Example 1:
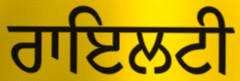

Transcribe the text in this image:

ਰਾਇਲਟੀ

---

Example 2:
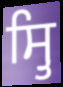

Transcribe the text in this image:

ਸ੍ਤਿ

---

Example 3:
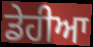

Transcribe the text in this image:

ਡੇਹੀਆ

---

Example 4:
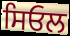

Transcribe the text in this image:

ਸਿਓਲ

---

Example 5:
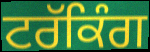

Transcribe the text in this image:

ਟਰੱਕਿੰਗ